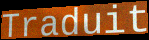
Traduit